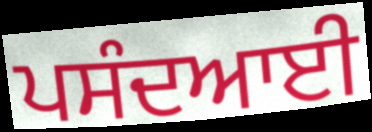
ਪਸੰਦਆਈ